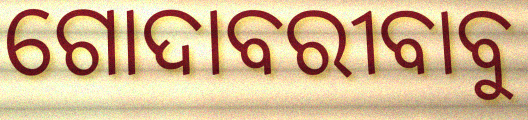
ଗୋଦାବରୀବାବୁ